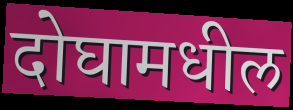
दोघामधील